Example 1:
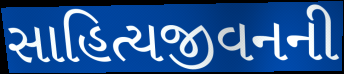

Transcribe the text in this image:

સાહિત્યજીવનની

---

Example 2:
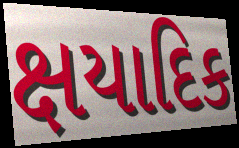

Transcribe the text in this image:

ક્ષયાદિક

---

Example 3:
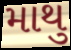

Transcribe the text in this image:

માથુ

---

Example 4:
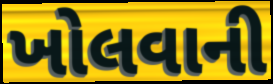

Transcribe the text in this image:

ખોલવાની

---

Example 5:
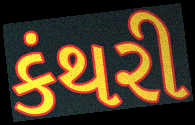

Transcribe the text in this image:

કંથરી